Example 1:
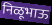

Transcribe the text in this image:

निळूभाऊ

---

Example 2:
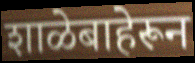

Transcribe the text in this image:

शाळेबाहेरून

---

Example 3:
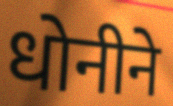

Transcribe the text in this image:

धोनीने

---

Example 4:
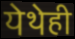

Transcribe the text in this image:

येथेही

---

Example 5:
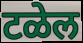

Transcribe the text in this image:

टळेल